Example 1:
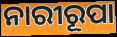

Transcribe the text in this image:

ନାରୀରୂପା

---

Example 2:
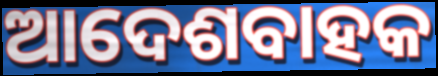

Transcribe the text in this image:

ଆଦେଶବାହକ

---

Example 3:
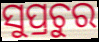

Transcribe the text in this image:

ସୁପ୍ରଚୁର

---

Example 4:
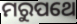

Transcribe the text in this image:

ମରୁପଥେ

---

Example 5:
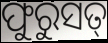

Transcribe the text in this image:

ଫୁରୁସତ୍